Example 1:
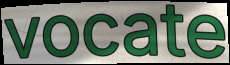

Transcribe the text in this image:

vocate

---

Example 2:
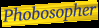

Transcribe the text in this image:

Phobosopher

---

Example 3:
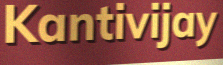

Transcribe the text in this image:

Kantivijay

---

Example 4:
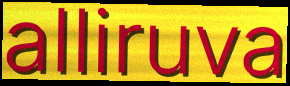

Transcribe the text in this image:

alliruva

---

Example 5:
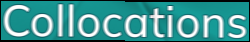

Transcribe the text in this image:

Collocations